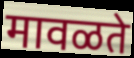
मावळते